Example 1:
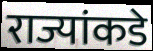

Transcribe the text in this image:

राज्यांकडे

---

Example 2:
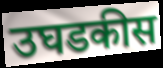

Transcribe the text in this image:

उघडकीस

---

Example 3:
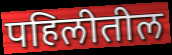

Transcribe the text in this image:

पहिलीतील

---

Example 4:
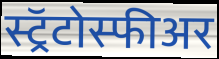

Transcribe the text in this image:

स्ट्रॅटोस्फीअर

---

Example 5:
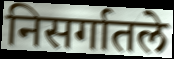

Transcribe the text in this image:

निसर्गातले